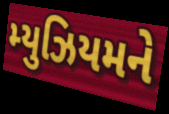
મ્યુઝિયમને